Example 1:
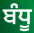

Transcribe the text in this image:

ਬੰਧੂ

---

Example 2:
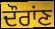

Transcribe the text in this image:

ਦੌਰਾਂਣ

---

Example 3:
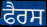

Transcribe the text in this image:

ਫੈਰਸ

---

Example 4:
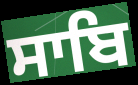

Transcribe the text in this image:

ਸਾਬਿ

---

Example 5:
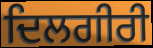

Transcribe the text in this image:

ਦਿਲਗੀਰੀ